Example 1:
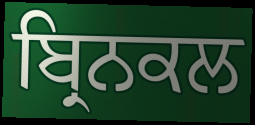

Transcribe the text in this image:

ਬ੍ਰਿਨਕਲ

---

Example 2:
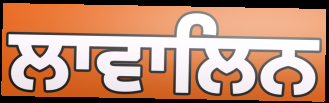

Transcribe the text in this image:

ਲਾਵਾਲਿਨ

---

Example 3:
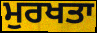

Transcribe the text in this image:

ਮੁਰਖਤਾ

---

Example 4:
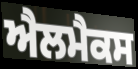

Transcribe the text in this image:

ਐਲਮੈਕਸ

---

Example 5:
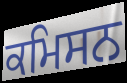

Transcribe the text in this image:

ਕਮਿਸਨ